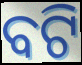
ବଟି